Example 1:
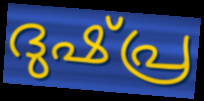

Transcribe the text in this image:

ദുഷ്‌പ്ര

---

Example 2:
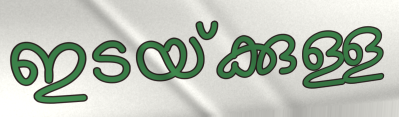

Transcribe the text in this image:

ഇടയ്‌ക്കുള്ള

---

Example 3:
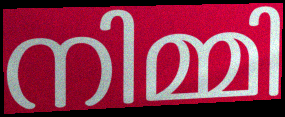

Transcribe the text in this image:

നിമ്മി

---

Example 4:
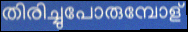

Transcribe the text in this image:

തിരിച്ചുപോരുമ്പോള്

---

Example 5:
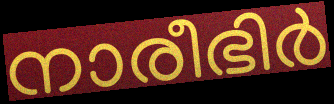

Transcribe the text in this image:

നാരീഭിർ